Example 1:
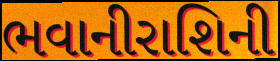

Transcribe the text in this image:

ભવાનીરાશિની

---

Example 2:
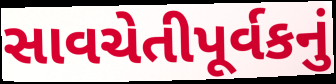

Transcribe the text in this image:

સાવચેતીપૂર્વકનું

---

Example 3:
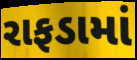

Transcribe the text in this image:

રાફડામાં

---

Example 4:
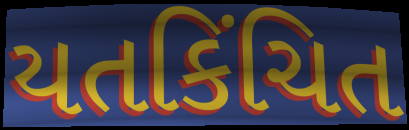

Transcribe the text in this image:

યતકિંચિત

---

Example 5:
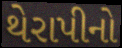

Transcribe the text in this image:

થેરાપીનો